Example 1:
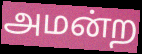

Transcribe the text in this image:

அமன்ற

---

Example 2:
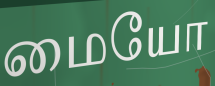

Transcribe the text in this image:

மையோ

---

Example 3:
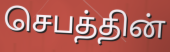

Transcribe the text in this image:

செபத்தின்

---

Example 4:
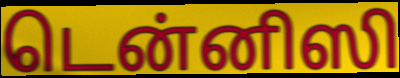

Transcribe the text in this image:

டென்னிஸி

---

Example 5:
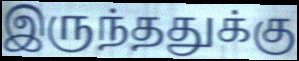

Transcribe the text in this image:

இருந்ததுக்கு